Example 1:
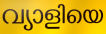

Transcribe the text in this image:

വ്യാളിയെ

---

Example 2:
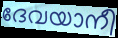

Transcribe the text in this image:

ദേവയാനീ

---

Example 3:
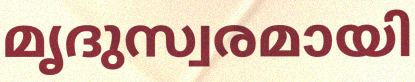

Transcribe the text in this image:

മൃദുസ്വരമായി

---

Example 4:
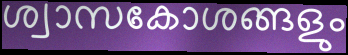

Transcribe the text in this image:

ശ്വാസകോശങ്ങളും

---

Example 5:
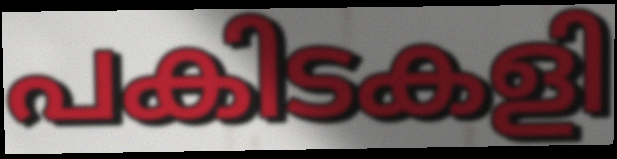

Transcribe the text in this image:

പകിടകളി